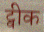
ट्वीक